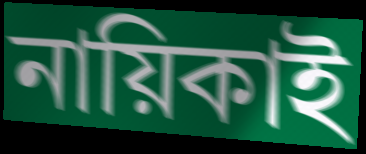
নায়িকাই